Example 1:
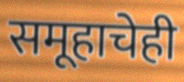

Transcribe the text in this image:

समूहाचेही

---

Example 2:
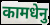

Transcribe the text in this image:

कामधेनु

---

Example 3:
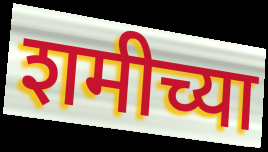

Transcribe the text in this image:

शमीच्या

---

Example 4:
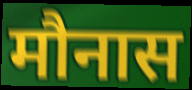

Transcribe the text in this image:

मौनास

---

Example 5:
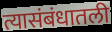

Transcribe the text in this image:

त्यासंबंधातली